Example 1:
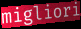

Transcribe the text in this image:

migliori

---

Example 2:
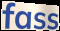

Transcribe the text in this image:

fass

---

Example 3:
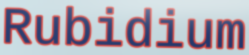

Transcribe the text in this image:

Rubidium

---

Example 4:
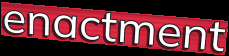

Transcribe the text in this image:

enactment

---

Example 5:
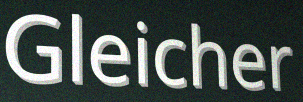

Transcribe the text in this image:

Gleicher